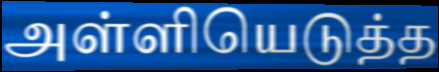
அள்ளியெடுத்த